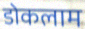
डोकलाम